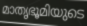
മാതൃഭൂമിയുടെ